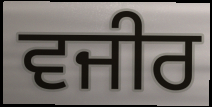
ਵਜੀਰ